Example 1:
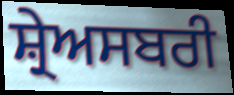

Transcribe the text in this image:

ਸ਼੍ਰੇਅਸਬਰੀ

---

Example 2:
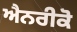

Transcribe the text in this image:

ਐਨਰੀਕੋ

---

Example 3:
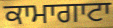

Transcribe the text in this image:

ਕਾਮਾਗਾਟਾ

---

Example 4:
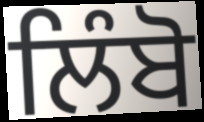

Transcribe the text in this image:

ਲਿੰਬੋ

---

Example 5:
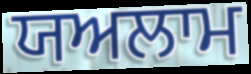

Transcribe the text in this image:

ਯਅਲਾਮ